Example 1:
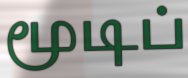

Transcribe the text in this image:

மூடிப்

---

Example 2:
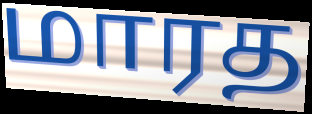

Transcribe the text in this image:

மாரத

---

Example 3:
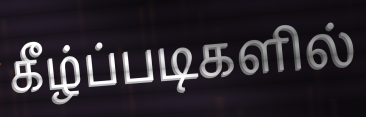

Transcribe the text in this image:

கீழ்ப்படிகளில்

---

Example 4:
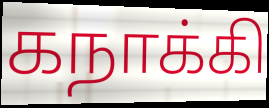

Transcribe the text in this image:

கநாக்கி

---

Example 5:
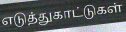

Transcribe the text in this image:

எடுத்துகாட்டுகள்